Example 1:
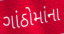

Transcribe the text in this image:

ગાંઠોમાંના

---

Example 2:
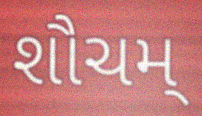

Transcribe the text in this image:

શૌચમ્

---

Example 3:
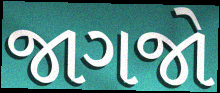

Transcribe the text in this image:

જાગજો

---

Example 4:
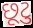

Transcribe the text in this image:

છૂટુ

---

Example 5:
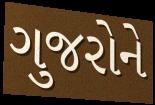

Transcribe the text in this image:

ગુજરોને